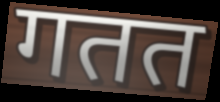
गतत